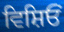
ਵਿਸ਼ਿਓਂ